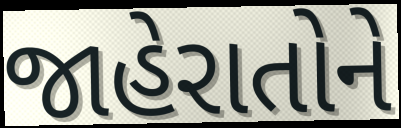
જાહેરાતોને